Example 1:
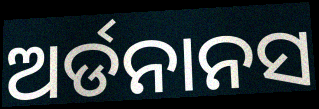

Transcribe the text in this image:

ଅର୍ଡନାନସ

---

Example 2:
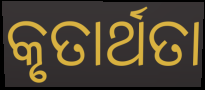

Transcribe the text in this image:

କୃତାର୍ଥତା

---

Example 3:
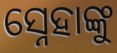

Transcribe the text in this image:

ସ୍ନେହାଙ୍କୁ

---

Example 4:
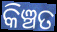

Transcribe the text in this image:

କିଞ୍ଚତ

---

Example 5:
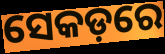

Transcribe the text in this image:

ସେକଡ଼ରେ